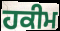
ਹਕੀਮ